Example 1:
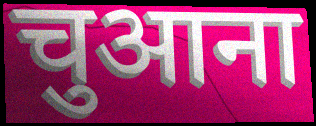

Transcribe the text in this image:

चुआना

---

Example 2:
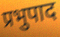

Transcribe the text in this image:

प्रभुपाद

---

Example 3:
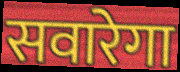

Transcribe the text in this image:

सवारेगा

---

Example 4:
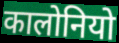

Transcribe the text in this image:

कालोनियो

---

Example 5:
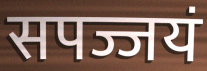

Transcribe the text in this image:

सपज्जयं